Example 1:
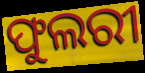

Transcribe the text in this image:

ଫୁଲରୀ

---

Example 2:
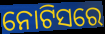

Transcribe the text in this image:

ନୋଟିସରେ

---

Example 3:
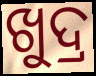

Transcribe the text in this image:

ଖୁଦ୍ର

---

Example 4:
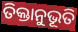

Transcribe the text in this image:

ତିକ୍ତାନୁଭୂତି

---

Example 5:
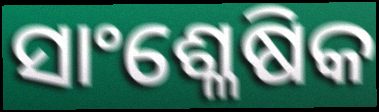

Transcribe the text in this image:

ସାଂଶ୍ଳେଷିକ